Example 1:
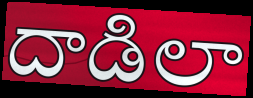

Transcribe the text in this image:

దాడిలా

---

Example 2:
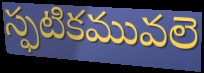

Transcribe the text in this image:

స్ఫటికమువలె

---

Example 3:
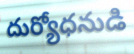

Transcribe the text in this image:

దుర్యోధనుడి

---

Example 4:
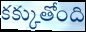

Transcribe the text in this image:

కక్కుతోంది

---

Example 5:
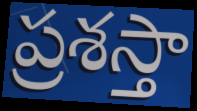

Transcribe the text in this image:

ప్రశస్తా